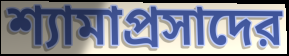
শ্যামাপ্রসাদের